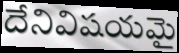
దేనివిషయమై